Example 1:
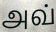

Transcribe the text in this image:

அவ்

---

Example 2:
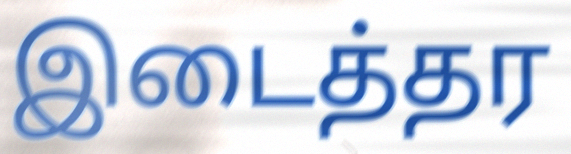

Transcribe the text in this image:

இடைத்தர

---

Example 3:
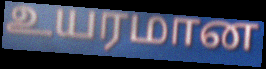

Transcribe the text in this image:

உயரமான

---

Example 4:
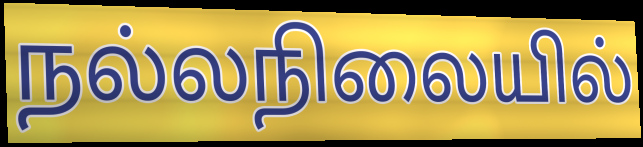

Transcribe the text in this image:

நல்லநிலையில்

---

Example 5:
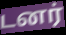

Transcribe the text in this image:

டனர்